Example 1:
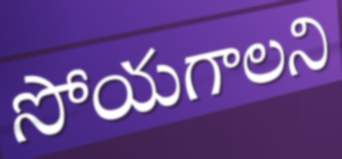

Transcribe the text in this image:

సోయగాలని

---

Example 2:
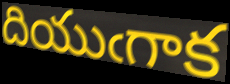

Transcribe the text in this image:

దియుఁగాక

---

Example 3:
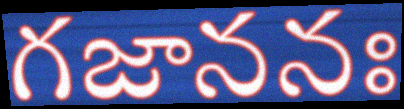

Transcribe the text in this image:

గజాననః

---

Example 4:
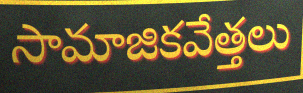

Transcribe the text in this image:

సామాజికవేత్తలు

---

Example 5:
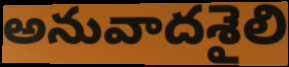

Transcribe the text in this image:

అనువాదశైలి